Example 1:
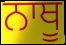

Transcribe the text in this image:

ਨਾਥੂ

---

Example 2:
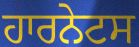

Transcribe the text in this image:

ਹਾਰਨੇਟਸ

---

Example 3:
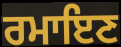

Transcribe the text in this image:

ਰਮਾਇਣ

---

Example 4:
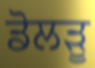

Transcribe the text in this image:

ਡੋਲੜੂ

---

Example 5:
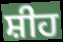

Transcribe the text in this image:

ਸ਼ੀਹ